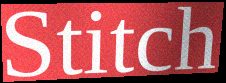
Stitch